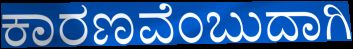
ಕಾರಣವೆಂಬುದಾಗಿ